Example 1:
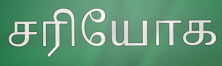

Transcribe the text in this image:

சரியோக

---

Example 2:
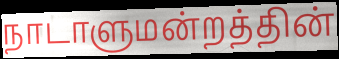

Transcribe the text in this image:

நாடாளுமன்றத்தின்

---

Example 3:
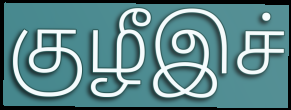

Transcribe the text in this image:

குழீஇச்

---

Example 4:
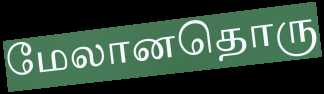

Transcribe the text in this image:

மேலானதொரு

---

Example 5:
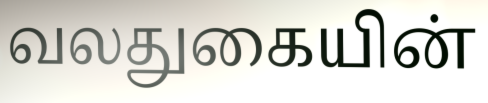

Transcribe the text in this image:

வலதுகையின்